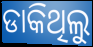
ଡାକିଥିଲୁ